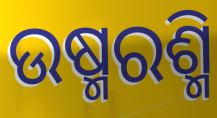
ଉଷ୍ମରଶ୍ମି